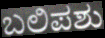
ಬಲಿಪಶು